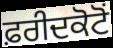
ਫ਼ਰੀਦਕੋਟੋਂ